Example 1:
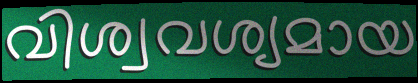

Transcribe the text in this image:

വിശ്വവശ്യമായ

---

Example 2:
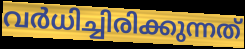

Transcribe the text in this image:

വർധിച്ചിരിക്കുന്നത്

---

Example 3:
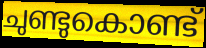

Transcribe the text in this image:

ചുണ്ടുകൊണ്ട്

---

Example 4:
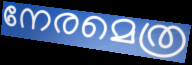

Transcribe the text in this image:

നേരമെത്ര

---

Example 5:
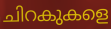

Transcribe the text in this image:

ചിറകുകളെ